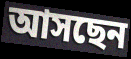
আসছেন